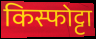
किस्फोट्टा